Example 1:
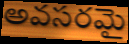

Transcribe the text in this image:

అవసరమై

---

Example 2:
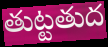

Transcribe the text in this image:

తుట్టతుద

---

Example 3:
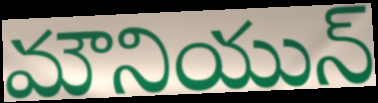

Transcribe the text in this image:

మౌనియున్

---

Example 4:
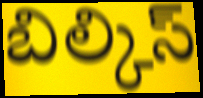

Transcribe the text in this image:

బిల్కిస్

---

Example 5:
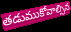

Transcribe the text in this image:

తడుముకోవాల్సిన